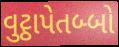
વુટ્ઠાપેતબ્બો